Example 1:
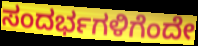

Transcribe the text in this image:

ಸಂದರ್ಭಗಳಿಗೆಂದೇ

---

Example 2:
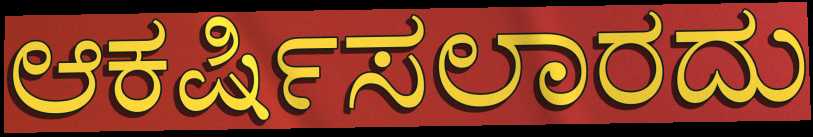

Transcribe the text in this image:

ಆಕರ್ಷಿಸಲಾರದು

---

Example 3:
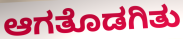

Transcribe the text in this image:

ಆಗತೊಡಗಿತು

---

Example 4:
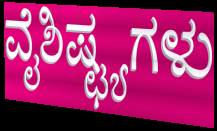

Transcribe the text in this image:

ವೈಶಿಷ್ಟ್ಯಗಳು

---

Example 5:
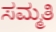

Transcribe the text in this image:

ಸಮ್ಮತಿ